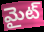
మైట్